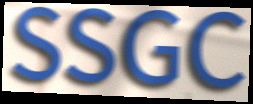
SSGC